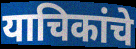
याचिकांचे